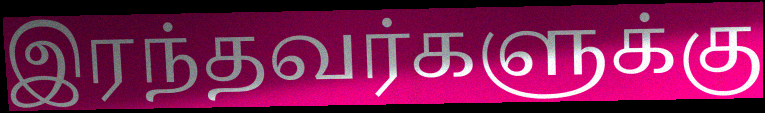
இரந்தவர்களுக்கு